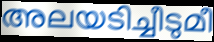
അലയടിച്ചീടുമീ